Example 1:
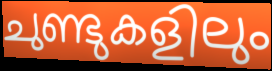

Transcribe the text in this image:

ചുണ്ടുകളിലും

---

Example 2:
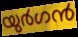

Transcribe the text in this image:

യുർഗൻ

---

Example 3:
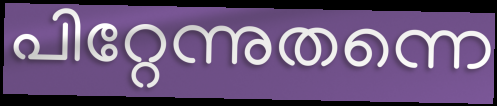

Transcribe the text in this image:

പിറ്റേന്നുതന്നെ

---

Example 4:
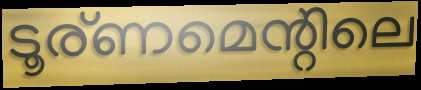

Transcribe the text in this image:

ടൂര്ണമെന്റിലെ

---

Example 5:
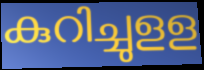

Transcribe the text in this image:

കുറിച്ചുളള